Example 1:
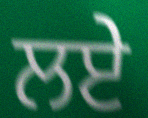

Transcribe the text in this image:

ਲਏੇ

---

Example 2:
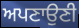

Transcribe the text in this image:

ਅਪਣਾਉਣੀ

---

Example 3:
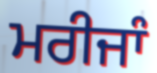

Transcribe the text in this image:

ਮਰੀਜਾੰ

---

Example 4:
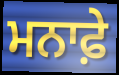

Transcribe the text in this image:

ਮਨਾਫ਼ੇ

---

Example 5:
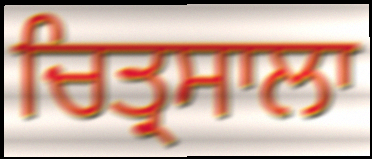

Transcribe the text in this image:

ਚਿਤ੍ਰਸਾਲਾ